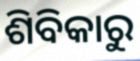
ଶିବିକାରୁ